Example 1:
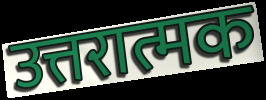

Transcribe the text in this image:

उत्तरात्मक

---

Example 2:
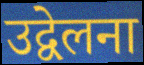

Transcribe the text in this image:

उद्वेलना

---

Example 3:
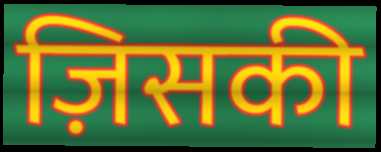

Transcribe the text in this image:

ज़िसकी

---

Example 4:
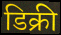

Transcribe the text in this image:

डिक्री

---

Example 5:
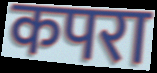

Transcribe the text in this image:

कपरा